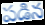
పడిన